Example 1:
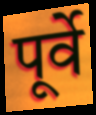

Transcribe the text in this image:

पूर्वे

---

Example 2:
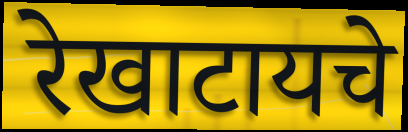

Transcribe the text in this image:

रेखाटायचे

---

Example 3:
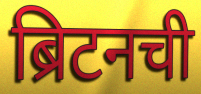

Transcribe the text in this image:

ब्रिटनची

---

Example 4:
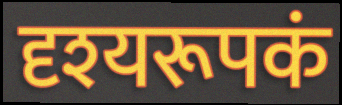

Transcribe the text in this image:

दृश्‍यरूपकं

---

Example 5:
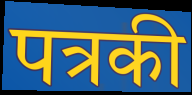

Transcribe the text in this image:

पत्रकी